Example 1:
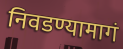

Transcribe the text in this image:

निवडण्यामागं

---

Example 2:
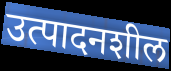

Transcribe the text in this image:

उत्पादनशील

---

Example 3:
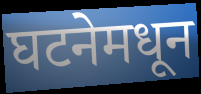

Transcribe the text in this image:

घटनेमधून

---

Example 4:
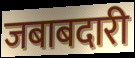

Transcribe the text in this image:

जबाबदारी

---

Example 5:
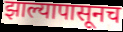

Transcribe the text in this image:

झाल्यापासूनच